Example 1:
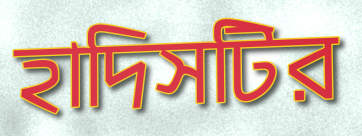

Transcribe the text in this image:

হাদিসটির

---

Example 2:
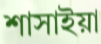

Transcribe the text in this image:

শাসাইয়া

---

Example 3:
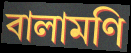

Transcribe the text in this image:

বালামণি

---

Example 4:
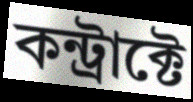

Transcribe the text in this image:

কন্ট্রাক্টে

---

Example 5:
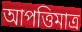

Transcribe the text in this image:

আপত্তিমাত্র